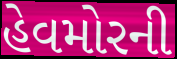
હેવમોરની